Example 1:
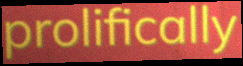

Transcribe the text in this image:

prolifically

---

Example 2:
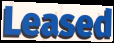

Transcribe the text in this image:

Leased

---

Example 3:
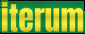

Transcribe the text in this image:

iterum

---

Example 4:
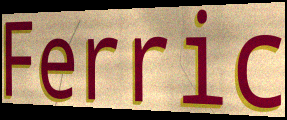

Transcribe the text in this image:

Ferric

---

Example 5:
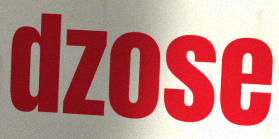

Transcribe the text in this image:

dzose